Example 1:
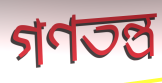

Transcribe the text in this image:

গণতন্ত্র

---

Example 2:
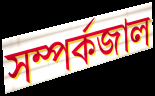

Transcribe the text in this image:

সম্পর্কজাল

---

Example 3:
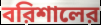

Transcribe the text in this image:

বরিশালের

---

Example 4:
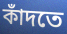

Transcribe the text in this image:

কাঁদতে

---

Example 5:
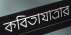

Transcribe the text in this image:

কবিতাযাত্রার